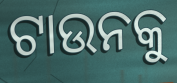
ଟାଉନକୁ